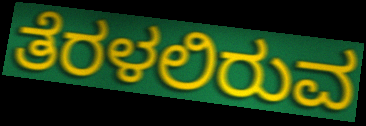
ತೆರಳಲಿರುವ